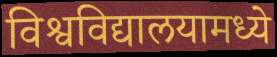
विश्वविद्यालयामध्ये